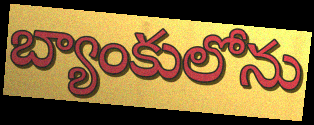
బ్యాంకులోను